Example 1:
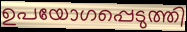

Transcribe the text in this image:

ഉപയോഗപ്പെടുത്തി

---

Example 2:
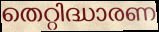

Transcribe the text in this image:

തെറ്റിദ്ധാരണ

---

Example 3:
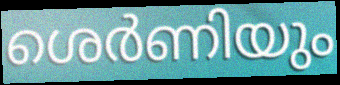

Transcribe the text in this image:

ശെർണിയും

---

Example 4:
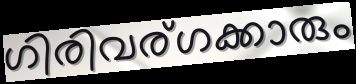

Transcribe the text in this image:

ഗിരിവര്ഗക്കാരും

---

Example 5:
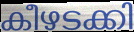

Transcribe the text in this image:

കീഴടക്കി